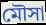
মৌসা